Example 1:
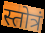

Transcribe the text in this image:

स्तोत्रं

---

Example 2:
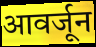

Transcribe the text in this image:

आवर्जून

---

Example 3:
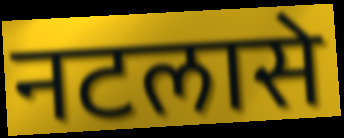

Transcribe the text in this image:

नटलासे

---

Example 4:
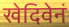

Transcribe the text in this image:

खेदिवेनं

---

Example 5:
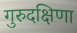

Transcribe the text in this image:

गुरुदक्षिणा